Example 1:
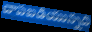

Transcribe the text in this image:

చాపబడియున్నది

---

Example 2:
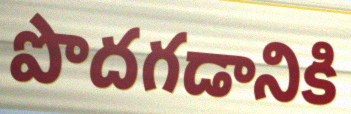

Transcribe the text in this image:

పొదగడానికి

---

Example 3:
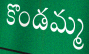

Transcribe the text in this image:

కొండమ్మ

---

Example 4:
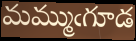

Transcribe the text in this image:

మమ్ముఁగూడ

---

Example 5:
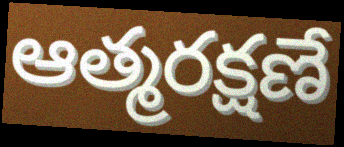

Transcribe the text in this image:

ఆత్మరక్షణే